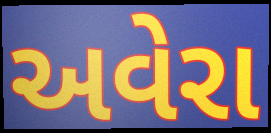
અવેરા